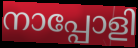
നാപ്പോളി